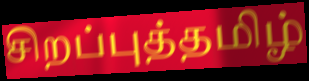
சிறப்புத்தமிழ்